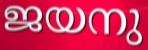
ജയനു